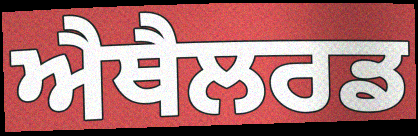
ਐਥੈਲਰਡ